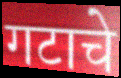
गटाचे